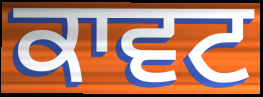
ਕਾਵਟ